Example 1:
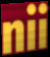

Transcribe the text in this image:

nii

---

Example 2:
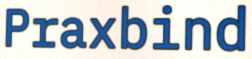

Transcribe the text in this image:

Praxbind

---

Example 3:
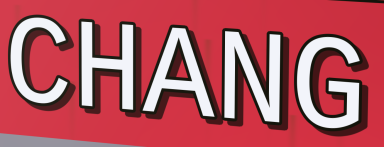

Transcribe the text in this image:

CHANG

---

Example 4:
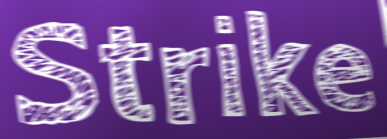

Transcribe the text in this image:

Strike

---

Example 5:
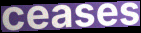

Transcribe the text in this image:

ceases